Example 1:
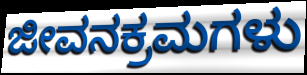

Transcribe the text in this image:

ಜೀವನಕ್ರಮಗಳು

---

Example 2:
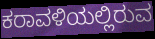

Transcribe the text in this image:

ಕರಾವಳಿಯಲ್ಲಿರುವ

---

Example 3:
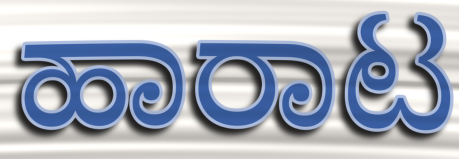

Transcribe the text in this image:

ಹಾರಾಟ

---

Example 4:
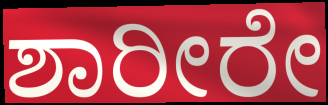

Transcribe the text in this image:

ಶಾರೀರೇ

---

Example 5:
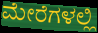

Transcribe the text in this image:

ಮೇರೆಗಳಲ್ಲಿ